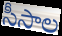
సీసాల